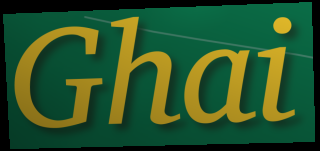
Ghai